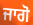
ਜਾਗੋ